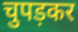
चुपड़कर